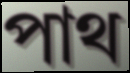
পাথ